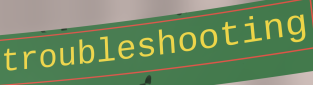
troubleshooting